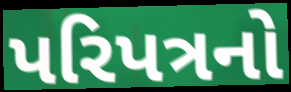
પરિપત્રનો